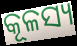
କୂଳସ୍ଯ